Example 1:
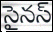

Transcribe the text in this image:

సైనస్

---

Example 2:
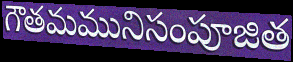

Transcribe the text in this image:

గౌతమమునిసంపూజిత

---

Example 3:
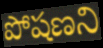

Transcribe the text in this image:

పోషణని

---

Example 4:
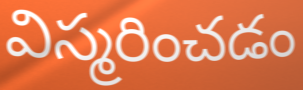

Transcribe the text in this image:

విస్మరించడం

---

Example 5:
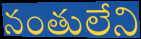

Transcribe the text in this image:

నంతులేని